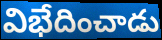
విభేదించాడు